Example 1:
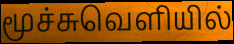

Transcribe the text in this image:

மூச்சுவெளியில்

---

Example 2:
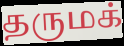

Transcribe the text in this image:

தருமக்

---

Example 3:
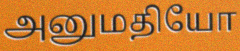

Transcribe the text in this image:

அனுமதியோ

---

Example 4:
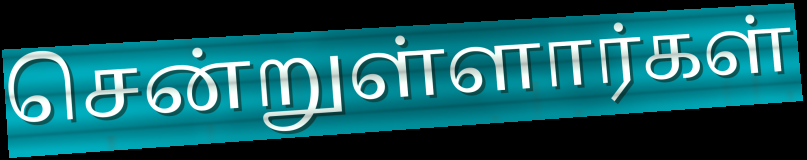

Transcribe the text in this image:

சென்றுள்ளார்கள்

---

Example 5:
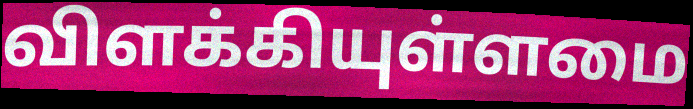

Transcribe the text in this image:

விளக்கியுள்ளமை